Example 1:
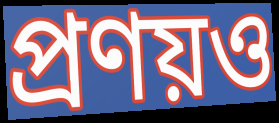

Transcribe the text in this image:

প্রণয়ও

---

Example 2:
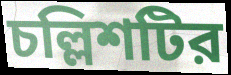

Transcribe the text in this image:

চল্লিশটির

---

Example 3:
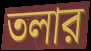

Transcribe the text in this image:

তলার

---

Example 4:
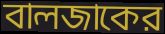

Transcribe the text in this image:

বালজাকের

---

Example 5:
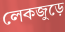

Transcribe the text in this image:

লেকজুড়ে